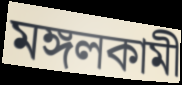
মঙ্গলকামী